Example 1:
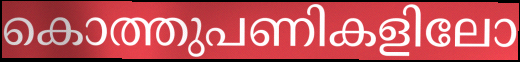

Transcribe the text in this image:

കൊത്തുപണികളിലോ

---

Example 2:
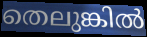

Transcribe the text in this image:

തെലുങ്കിൽ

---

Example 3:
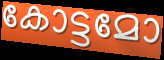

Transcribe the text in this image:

കോട്ടമോ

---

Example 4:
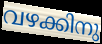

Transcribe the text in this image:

വഴക്കിനു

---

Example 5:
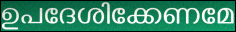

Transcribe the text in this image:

ഉപദേശിക്കേണമേ